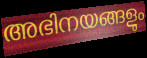
അഭിനയങ്ങളും